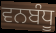
ਵਨਬੰਧੂ